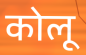
कोलू